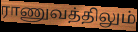
ராணுவத்திலும்